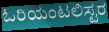
ಓರಿಯಂಟಲಿಸ್ಟರ